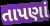
તાપણાં